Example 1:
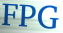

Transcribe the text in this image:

FPG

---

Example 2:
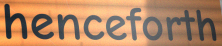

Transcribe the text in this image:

henceforth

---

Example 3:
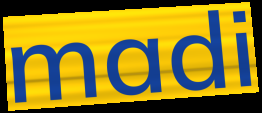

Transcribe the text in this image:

madi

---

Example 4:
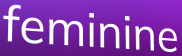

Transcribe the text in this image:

feminine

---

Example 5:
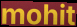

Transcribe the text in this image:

mohit